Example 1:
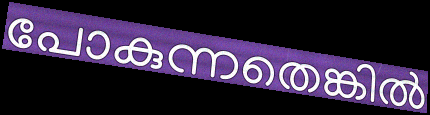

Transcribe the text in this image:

പോകുന്നതെങ്കിൽ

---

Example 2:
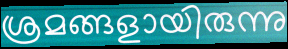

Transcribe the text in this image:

ശ്രമങ്ങളായിരുന്നു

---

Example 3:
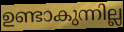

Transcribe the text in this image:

ഉണ്ടാകുന്നില്ല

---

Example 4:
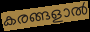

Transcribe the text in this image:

കരങ്ങളാൽ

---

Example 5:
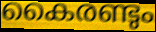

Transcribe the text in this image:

കൈരണ്ടും